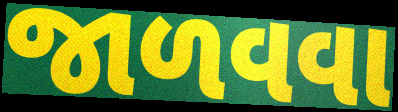
જાળવવા